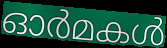
ഓർമകൾ